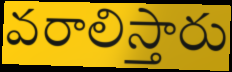
వరాలిస్తారు